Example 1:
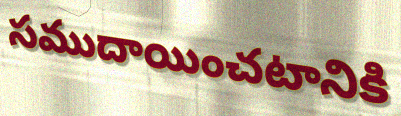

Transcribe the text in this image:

సముదాయించటానికి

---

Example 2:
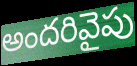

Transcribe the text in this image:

అందరివైపు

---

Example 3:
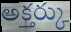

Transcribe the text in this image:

అక్తర్కు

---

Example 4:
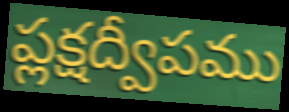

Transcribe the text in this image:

ప్లక్షద్వీపము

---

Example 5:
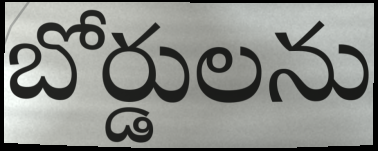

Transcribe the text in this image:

బోర్డులను